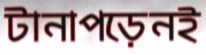
টানাপড়েনই